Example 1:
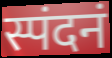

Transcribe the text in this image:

स्पंदनं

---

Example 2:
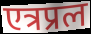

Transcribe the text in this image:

एत्रप्रल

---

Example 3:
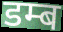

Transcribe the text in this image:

डम्ब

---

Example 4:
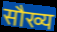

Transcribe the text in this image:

सौख्य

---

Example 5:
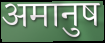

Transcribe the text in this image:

अमानुष